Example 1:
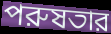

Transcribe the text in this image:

পরুষতার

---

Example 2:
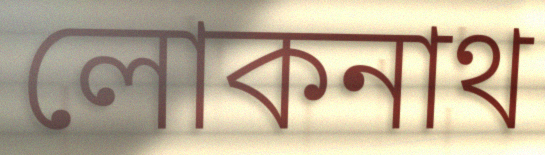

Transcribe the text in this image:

লোকনাথ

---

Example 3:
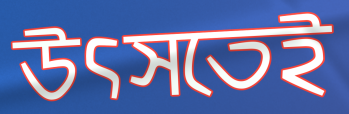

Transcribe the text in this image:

উৎসতেই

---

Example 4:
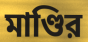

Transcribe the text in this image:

মাণ্ডির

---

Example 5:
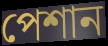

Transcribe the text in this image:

পেশান